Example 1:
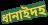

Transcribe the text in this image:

ধানাইদহ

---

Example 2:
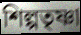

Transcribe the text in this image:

শিল্পতৃষ্ণা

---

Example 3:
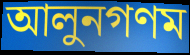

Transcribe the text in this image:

আলুনগণম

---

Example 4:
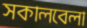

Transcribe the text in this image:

সকালবেলা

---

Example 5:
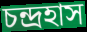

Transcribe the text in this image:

চন্দ্রহাস